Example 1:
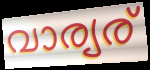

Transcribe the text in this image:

വാര്യര്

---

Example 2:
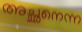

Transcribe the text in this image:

അച്ഛനെന്ന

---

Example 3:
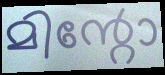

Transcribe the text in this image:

മിന്റോ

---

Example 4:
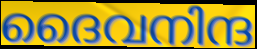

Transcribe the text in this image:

ദൈവനിന്ദ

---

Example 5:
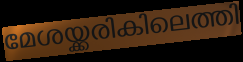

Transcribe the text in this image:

മേശയ്ക്കരികിലെത്തി